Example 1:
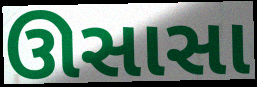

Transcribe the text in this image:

ઊસાસા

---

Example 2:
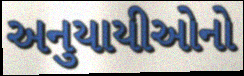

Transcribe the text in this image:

અનુયાયીઓનો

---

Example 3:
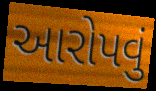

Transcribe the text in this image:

આરોપવું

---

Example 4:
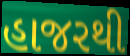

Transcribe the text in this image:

હાજરથી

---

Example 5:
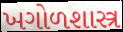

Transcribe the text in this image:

ખગોળશાસ્ત્ર